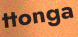
ttonga